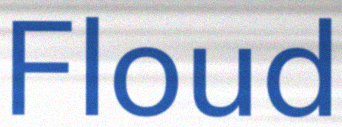
Floud